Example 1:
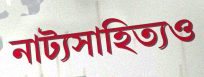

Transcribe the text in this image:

নাট্যসাহিত্যও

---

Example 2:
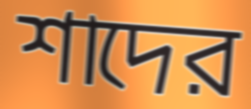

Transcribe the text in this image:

শাদের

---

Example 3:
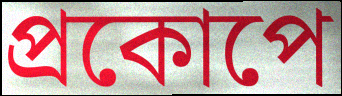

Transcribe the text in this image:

প্রকোপে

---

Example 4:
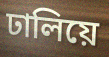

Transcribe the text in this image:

ঢালিয়ে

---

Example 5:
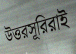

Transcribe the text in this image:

উত্তরসূরিরাই